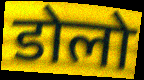
डोलो